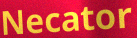
Necator